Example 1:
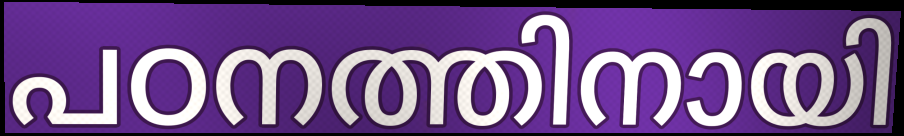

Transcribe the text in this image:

പഠനത്തിനായി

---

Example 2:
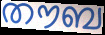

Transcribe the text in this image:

തൗബ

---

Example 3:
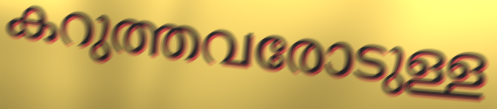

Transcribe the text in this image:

കറുത്തവരോടുള്ള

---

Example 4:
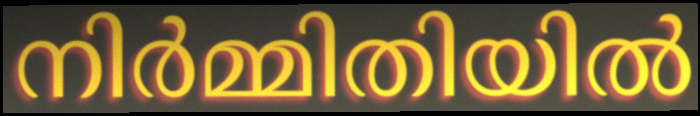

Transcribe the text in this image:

നിർമ്മിതിയിൽ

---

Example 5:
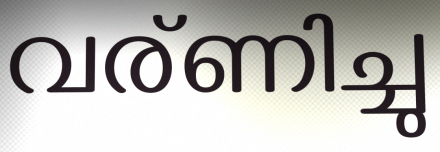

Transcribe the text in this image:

വര്ണിച്ചു